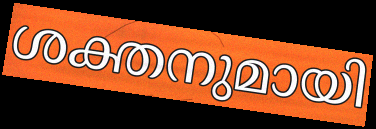
ശക്തനുമായി